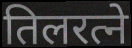
तिलरत्ने